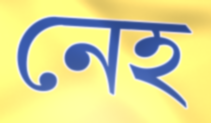
নেহ